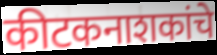
कीटकनाशकांचे